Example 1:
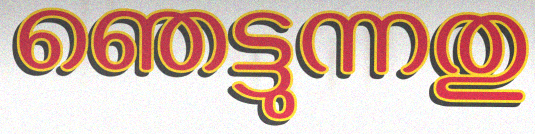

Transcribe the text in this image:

ഞെട്ടുന്നതു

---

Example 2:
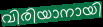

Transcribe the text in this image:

വിരിയാനായി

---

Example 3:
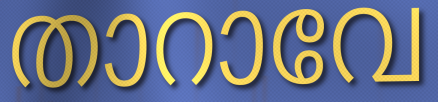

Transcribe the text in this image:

താറാവേ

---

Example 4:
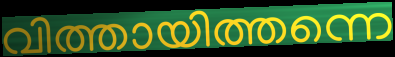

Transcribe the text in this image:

വിത്തായിത്തന്നെ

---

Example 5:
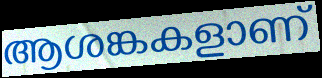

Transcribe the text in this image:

ആശങ്കകളാണ്